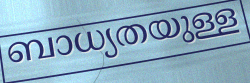
ബാധ്യതയുള്ള